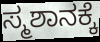
ಸ್ಮಶಾನಕ್ಕೆ